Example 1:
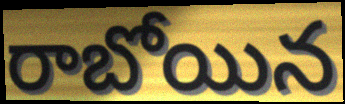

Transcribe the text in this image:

రాబోయిన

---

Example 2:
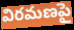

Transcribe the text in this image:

విరమణపై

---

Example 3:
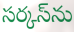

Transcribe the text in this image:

సర్కస్‌ను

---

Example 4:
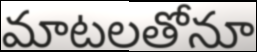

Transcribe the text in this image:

మాటలతోనూ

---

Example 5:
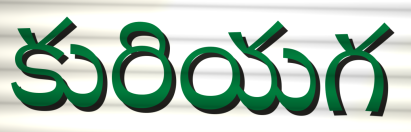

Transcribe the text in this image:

కురియగ